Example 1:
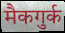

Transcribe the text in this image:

मैकगुर्क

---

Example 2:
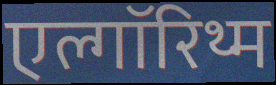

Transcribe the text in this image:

एल्गॉरिथ्म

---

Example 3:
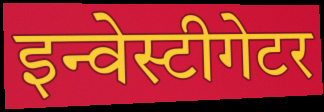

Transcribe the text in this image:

इन्वेस्टीगेटर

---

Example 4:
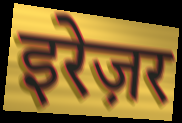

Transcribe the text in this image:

इरेज़र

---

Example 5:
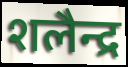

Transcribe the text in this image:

शलैन्द्र